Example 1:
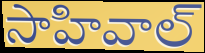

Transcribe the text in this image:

సాహివాల్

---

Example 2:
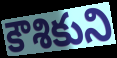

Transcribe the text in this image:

కౌశికుని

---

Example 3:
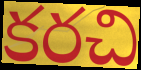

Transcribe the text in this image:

కరచి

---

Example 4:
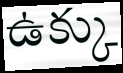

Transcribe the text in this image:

ఉక్కు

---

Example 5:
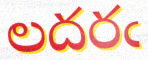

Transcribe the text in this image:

లదరఁ